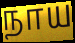
நாய